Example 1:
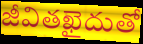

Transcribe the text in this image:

జీవితఖైదుతో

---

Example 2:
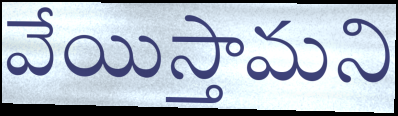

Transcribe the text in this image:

వేయిస్తామని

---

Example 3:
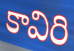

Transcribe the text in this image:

కావిరి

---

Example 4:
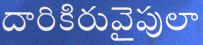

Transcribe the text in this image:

దారికిరువైపులా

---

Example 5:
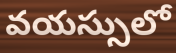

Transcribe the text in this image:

వయస్సులో